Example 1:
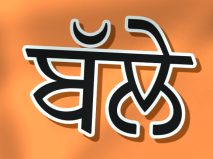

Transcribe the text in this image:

ਬੱਲੇ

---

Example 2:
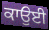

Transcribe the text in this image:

ਕਾਉਈ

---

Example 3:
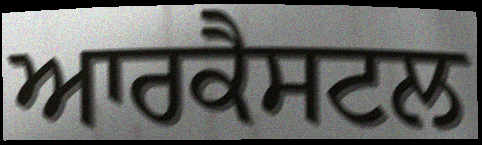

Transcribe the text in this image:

ਆਰਕੈਸਟਲ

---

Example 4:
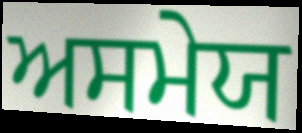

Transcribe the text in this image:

ਅਸਮੇਯ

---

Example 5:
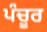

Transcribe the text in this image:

ਪੰਚੂਰ